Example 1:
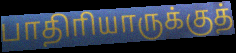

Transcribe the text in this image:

பாதிரியாருக்குத்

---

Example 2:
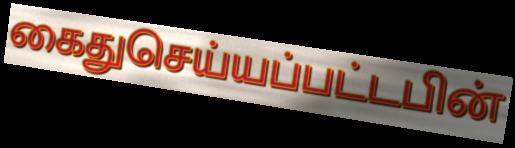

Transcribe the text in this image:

கைதுசெய்யப்பட்டபின்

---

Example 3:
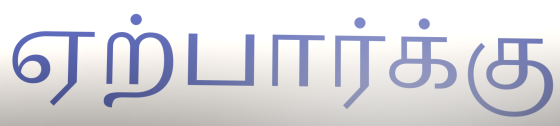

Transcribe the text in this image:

ஏற்பார்க்கு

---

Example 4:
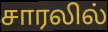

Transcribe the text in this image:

சாரலில்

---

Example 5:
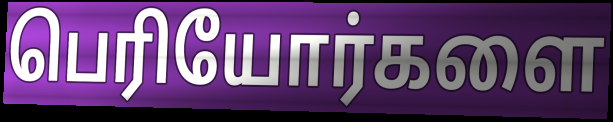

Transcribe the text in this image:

பெரியோர்களை